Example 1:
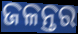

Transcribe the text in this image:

ଜଳନ୍ତର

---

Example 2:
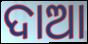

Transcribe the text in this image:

ଦାଆ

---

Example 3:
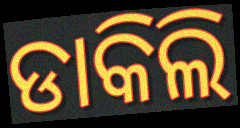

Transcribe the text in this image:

ଡାକିଲି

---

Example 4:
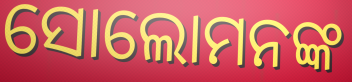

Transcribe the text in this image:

ସୋଲୋମନଙ୍କ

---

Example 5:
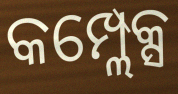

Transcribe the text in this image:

କମ୍ପ୍ଲେକ୍ସ